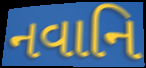
નવાનિ